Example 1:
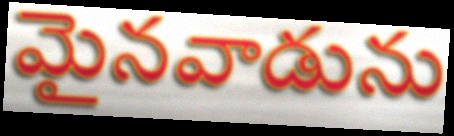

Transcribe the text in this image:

మైనవాడును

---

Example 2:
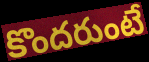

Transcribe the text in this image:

కొందరుంటే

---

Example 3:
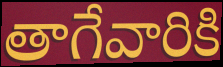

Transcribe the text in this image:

తాగేవారికి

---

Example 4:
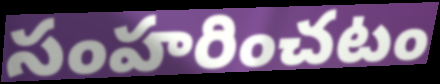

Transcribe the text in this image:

సంహరించటం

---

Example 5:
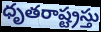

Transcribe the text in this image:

ధృతరాష్ట్రస్తు